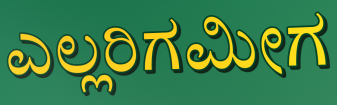
ಎಲ್ಲರಿಗಮೀಗ